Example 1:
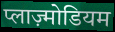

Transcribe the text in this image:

प्लाज़्मोडियम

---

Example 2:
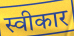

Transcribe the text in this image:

स्वीकार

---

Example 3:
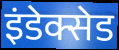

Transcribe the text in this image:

इंडेक्सेड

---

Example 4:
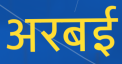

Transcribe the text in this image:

अरबई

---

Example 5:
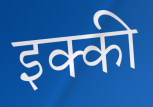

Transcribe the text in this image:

इक्की